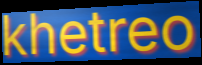
khetreo